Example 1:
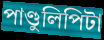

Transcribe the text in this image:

পাণ্ডুলিপিটা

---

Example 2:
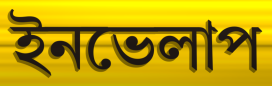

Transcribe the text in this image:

ইনভেলাপ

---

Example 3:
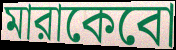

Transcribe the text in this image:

মারাকেবো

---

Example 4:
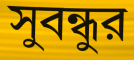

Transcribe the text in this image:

সুবন্ধুর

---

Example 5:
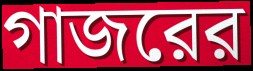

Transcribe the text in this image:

গাজরের